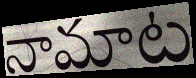
నామాట